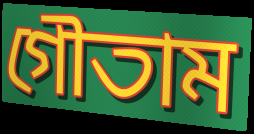
গৌতাম